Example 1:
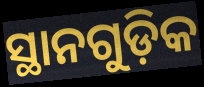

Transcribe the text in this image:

ସ୍ଥାନଗୁଡ଼ିକ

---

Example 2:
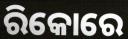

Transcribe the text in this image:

ରିକୋରେ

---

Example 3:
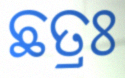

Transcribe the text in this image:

ଛତ୍ରଃ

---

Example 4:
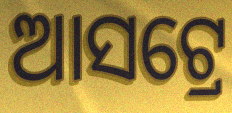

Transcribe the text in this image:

ଆସଟ୍ରେ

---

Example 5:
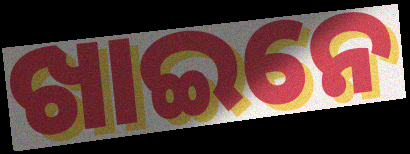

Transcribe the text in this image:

ଖାଇନେ